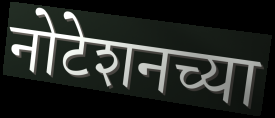
नोटेशनच्या